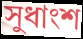
সুধাংশ